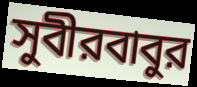
সুবীরবাবুর